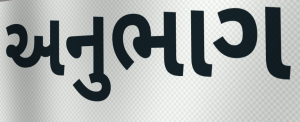
અનુભાગ